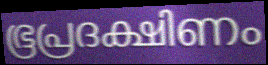
ഭൂപ്രദക്ഷിണം